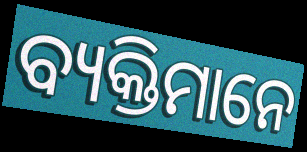
ବ୍ୟକ୍ତିମାନେ